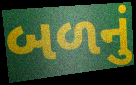
બળનું